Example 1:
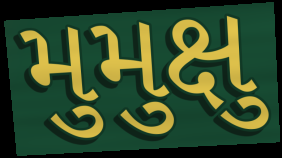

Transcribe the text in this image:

મુમુક્ષુ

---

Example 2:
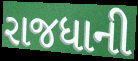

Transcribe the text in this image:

રાજધાની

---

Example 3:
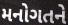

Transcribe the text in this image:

મનોગતને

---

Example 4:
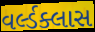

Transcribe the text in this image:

વર્લ્ડક્લાસ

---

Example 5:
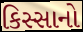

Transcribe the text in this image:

કિસ્સાનો